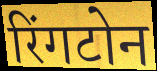
रिंगटोन